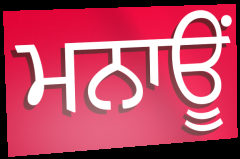
ਮਨਾਊਂ